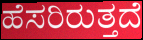
ಹೆಸರಿರುತ್ತದೆ